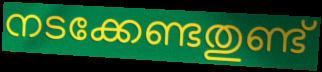
നടക്കേണ്ടതുണ്ട്